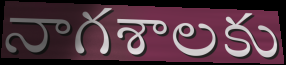
నాగశాలకు